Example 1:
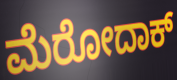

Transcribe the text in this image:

ಮೆರೋದಾಕ್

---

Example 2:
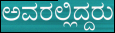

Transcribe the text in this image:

ಅವರಲ್ಲಿದ್ದರು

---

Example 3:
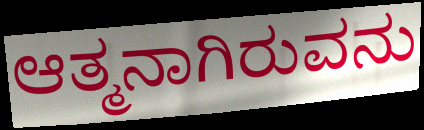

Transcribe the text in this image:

ಆತ್ಮನಾಗಿರುವನು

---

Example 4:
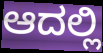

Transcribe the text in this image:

ಆದಲ್ಲಿ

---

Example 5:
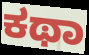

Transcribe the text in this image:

ಕಥಾ